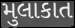
મુલાકાત